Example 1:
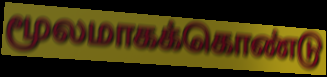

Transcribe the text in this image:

மூலமாகக்கொண்டு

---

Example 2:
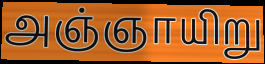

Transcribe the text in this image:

அஞ்ஞாயிறு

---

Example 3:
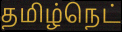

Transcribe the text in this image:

தமிழ்நெட்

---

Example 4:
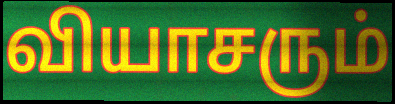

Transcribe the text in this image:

வியாசரும்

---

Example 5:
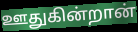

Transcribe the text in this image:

ஊதுகின்றான்